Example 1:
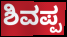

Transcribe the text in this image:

ಶಿವಪ್ಪ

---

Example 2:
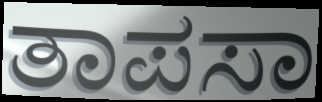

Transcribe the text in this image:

ತಾಪಸಾ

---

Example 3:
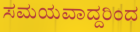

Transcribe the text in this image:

ಸಮಯವಾದ್ದರಿಂದ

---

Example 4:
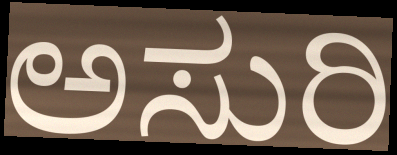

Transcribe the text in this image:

ಅಸುರಿ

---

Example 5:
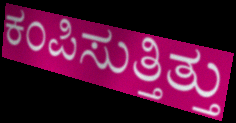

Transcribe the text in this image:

ಕಂಪಿಸುತ್ತಿತ್ತು